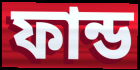
ফান্ড